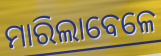
ମାରିଲାବେଳେ